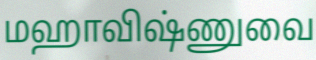
மஹாவிஷ்ணுவை